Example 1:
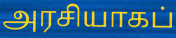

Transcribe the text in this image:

அரசியாகப்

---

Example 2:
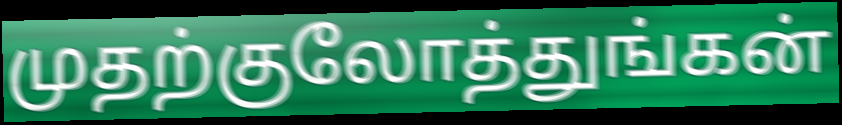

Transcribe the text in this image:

முதற்குலோத்துங்கன்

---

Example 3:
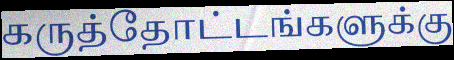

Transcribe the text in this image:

கருத்தோட்டங்களுக்கு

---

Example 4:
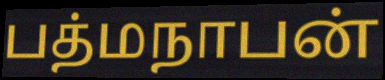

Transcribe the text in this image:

பத்மநாபன்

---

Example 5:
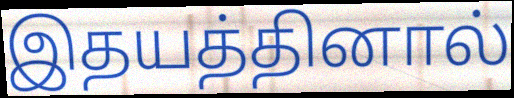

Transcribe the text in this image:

இதயத்தினால்